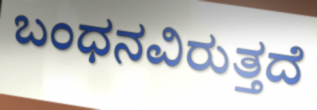
ಬಂಧನವಿರುತ್ತದೆ